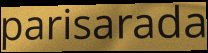
parisarada